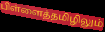
பிள்ளைத்தமிழிலும்